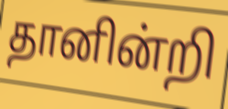
தானின்றி